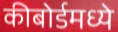
कीबोर्डमध्ये